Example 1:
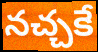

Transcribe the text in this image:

నచ్చకే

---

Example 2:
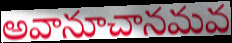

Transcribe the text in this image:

అవానూచానమవ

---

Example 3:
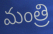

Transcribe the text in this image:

మంత్రి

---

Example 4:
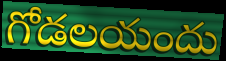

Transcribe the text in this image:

గోడలయందు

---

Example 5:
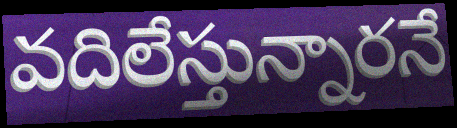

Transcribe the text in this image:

వదిలేస్తున్నారనే